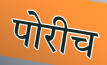
पोरीच